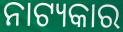
ନାଟ୍ଯକାର